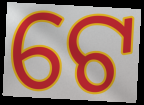
ଟେ